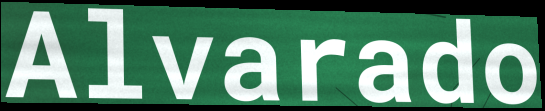
Alvarado